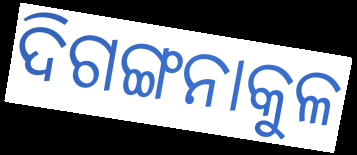
ଦିଗଙ୍ଗନାକୁଳ